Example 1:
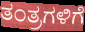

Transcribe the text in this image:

ತಂತ್ರಗಳಿಗೆ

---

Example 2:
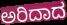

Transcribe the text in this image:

ಅರಿದಾದ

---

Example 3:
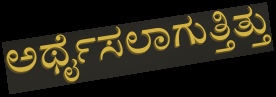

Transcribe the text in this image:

ಅರ್ಥೈಸಲಾಗುತ್ತಿತ್ತು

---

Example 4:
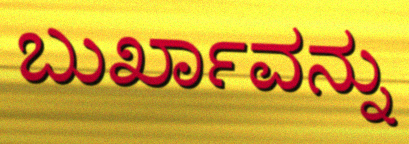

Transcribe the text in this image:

ಬುರ್ಖಾವನ್ನು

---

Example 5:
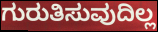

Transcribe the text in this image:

ಗುರುತಿಸುವುದಿಲ್ಲ